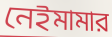
নেইমামার